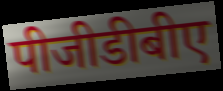
पीजीडीबीए